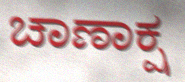
ಚಾಣಾಕ್ಷ